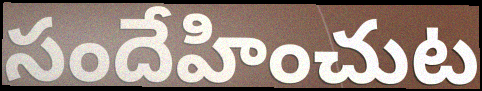
సందేహించుట